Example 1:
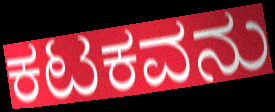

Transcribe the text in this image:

ಕಟಕವನು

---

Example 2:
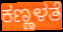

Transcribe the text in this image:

ಕಣ್ಣಳತೆ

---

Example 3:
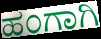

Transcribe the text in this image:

ಹಂಗಾಗಿ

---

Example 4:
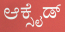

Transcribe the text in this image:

ಆಕ್ಸೈಡ್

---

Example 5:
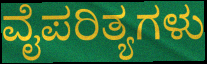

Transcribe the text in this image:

ವೈಪರಿತ್ಯಗಳು